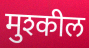
मुश्कील